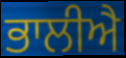
ਭਾਲੀਐ